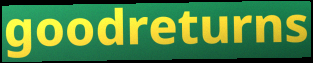
goodreturns